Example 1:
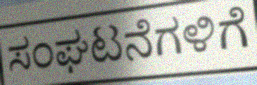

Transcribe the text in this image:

ಸಂಘಟನೆಗಳಿಗೆ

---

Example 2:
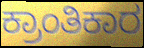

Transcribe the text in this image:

ಕ್ರಾಂತಿಕಾರ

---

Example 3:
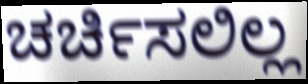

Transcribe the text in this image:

ಚರ್ಚಿಸಲಿಲ್ಲ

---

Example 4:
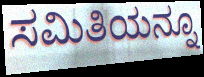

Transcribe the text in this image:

ಸಮಿತಿಯನ್ನೂ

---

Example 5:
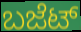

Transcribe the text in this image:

ಬಜೆಟ್